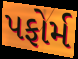
પફોર્મ